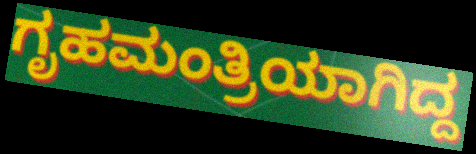
ಗೃಹಮಂತ್ರಿಯಾಗಿದ್ದ